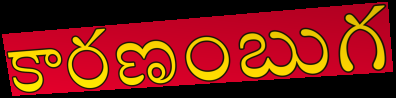
కారణంబుగ